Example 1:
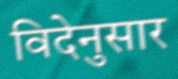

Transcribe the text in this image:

विदेनुसार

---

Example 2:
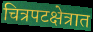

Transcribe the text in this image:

चित्रपटक्षेत्रात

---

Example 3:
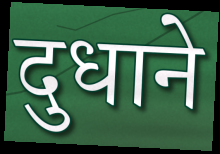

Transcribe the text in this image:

दुधाने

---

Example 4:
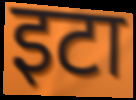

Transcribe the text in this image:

इटा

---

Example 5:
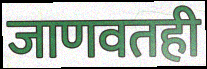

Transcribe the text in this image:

जाणवतही